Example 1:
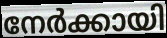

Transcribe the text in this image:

നേർക്കായി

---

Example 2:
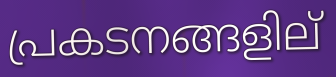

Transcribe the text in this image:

പ്രകടനങ്ങളില്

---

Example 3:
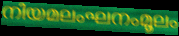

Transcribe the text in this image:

നിയമലംഘനംമൂലം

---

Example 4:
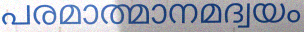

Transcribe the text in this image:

പരമാത്മാനമദ്വയം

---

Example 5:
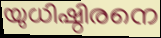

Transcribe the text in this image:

യുധിഷ്ഠിരനെ